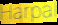
Harpal